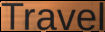
Travel